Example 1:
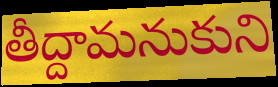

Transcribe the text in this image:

తీద్దామనుకుని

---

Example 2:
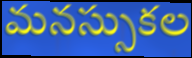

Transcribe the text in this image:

మనస్సుకల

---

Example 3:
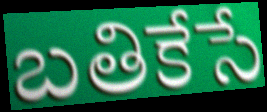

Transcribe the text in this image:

బతికేసే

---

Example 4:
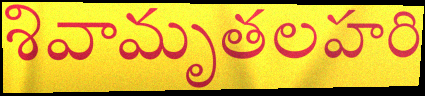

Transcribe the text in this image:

శివామృతలహరి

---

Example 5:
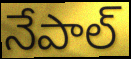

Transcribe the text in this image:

నేపాల్